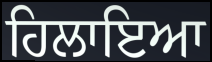
ਹਿਲਾਇਆ